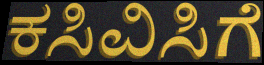
ಕಸಿವಿಸಿಗೆ